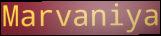
Marvaniya